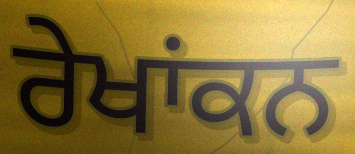
ਰੇਖਾਂਕਨ